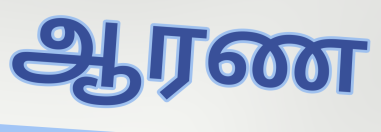
ஆரண